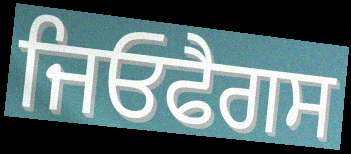
ਜਿਓਫੈਗਸ